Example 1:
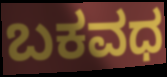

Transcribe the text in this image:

ಬಕವಧ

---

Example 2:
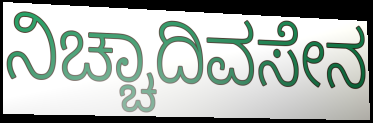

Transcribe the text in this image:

ನಿಚ್ಚಾದಿವಸೇನ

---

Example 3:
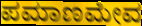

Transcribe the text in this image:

ಪಮಾಣಮೇವ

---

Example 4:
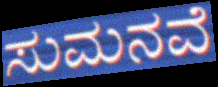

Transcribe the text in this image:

ಸುಮನವೆ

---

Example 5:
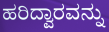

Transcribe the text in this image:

ಹರಿದ್ವಾರವನ್ನು